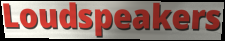
Loudspeakers